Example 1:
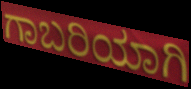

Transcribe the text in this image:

ಗಾಬರಿಯಾಗಿ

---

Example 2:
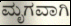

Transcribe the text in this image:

ಮೃಗವಾಗಿ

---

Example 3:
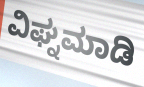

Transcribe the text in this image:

ವಿಘ್ನಮಾಡಿ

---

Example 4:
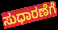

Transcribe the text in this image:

ಸುಧಾರಣೆಗೆ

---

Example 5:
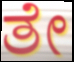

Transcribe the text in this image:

ತೇ